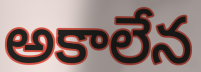
అకాలేన